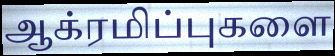
ஆக்ரமிப்புகளை